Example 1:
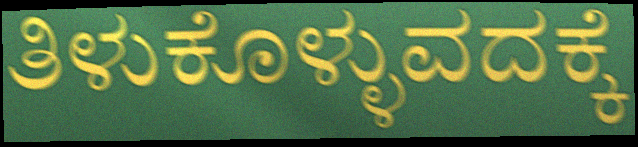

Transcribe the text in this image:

ತಿಳುಕೊಳ್ಳುವದಕ್ಕೆ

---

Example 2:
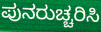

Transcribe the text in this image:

ಪುನರುಚ್ಚರಿಸಿ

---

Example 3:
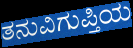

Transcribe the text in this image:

ತನುವಿಗುಪ್ತಿಯ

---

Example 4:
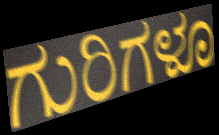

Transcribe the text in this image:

ಗುರಿಗಳೂ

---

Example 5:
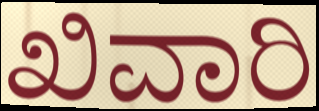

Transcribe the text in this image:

ಖಿವಾರಿ